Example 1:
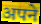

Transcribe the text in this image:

अपने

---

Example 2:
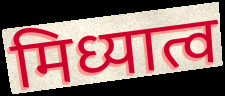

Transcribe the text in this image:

मिध्यात्व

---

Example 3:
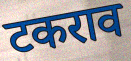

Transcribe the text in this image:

टकराव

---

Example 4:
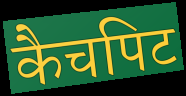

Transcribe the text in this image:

कैचपिट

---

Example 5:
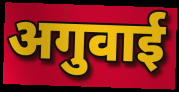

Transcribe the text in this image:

अगुवाई